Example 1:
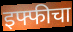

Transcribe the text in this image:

इफ्फीचा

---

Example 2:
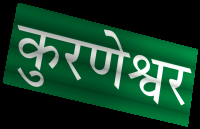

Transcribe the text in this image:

कुरणेश्वर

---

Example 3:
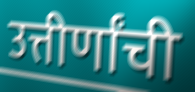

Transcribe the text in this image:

उत्तीर्णांची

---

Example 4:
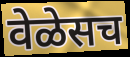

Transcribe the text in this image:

वेळेसच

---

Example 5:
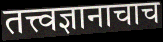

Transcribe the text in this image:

तत्त्वज्ञानाचाच